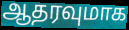
ஆதரவுமாக